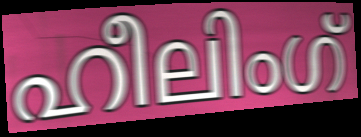
ഹീലിംഗ്